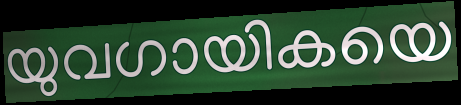
യുവഗായികയെ